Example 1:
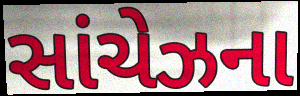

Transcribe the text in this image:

સાંચેઝના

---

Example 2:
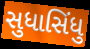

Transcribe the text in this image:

સુધાસિંધુ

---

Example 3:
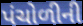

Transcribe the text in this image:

પંચોળીની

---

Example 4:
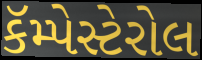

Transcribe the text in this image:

કૅમ્પેસ્ટેરોલ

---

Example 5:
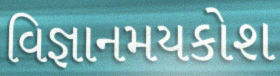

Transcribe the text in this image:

વિજ્ઞાનમયકોશ